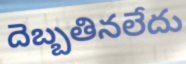
దెబ్బతినలేదు